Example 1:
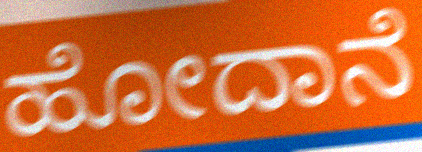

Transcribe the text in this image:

ಹೋದಾನೆ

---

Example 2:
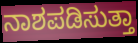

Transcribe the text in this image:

ನಾಶಪಡಿಸುತ್ತಾ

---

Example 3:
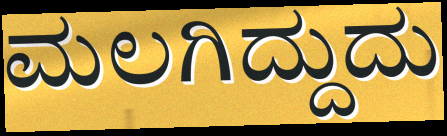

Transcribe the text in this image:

ಮಲಗಿದ್ದುದು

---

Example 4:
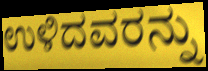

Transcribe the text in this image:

ಉಳಿದವರನ್ನು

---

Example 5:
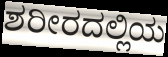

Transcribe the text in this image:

ಶರೀರದಲ್ಲಿಯ